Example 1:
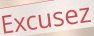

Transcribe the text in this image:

Excusez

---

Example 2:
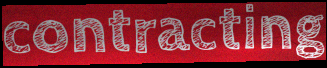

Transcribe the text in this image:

contracting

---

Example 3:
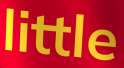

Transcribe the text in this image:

little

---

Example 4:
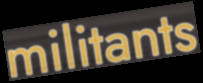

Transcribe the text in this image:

militants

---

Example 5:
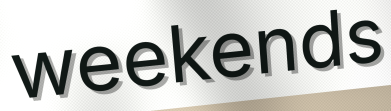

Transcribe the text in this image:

weekends